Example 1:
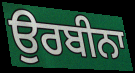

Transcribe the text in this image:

ਉਰਬੀਨਾ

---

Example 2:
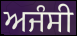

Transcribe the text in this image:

ਅਜੰਸੀ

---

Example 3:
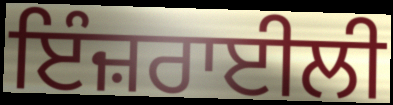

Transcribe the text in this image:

ਇੰਜ਼ਰਾਈਲੀ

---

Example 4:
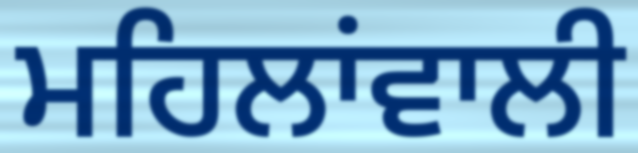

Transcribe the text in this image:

ਮਹਿਲਾਂਵਾਲੀ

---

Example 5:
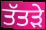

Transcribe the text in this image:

ਤੱਤੜੇ